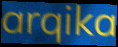
arqika